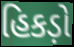
હિકડ઼ો